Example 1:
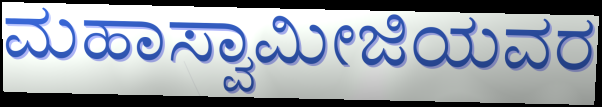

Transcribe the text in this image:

ಮಹಾಸ್ವಾಮೀಜಿಯವರ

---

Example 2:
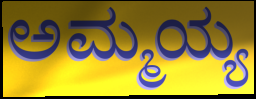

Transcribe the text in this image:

ಅಮ್ಮಯ್ಯ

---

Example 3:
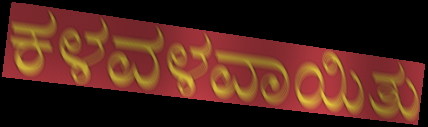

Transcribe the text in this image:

ಕಳವಳವಾಯಿತು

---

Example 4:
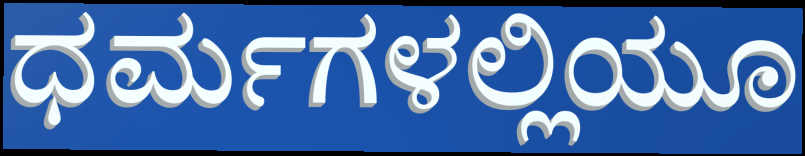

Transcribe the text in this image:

ಧರ್ಮಗಳಲ್ಲಿಯೂ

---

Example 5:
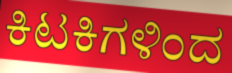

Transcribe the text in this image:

ಕಿಟಕಿಗಳಿಂದ